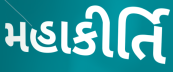
મહાકીર્તિ